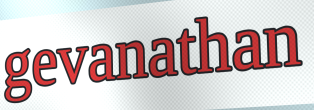
gevanathan